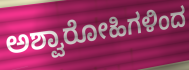
ಅಶ್ವಾರೋಹಿಗಳಿಂದ